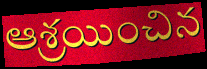
ఆశ్రయించిన